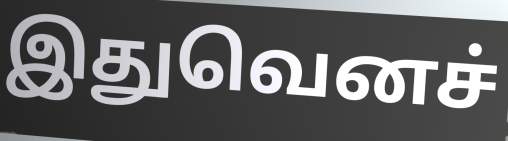
இதுவெனச்